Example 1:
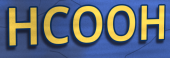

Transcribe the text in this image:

HCOOH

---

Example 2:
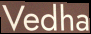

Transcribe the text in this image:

Vedha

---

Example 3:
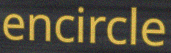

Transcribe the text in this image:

encircle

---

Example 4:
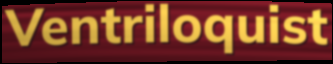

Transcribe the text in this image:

Ventriloquist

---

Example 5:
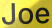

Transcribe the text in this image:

Joe